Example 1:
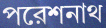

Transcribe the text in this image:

পরেশনাথ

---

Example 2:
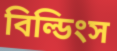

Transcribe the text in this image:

বিল্ডিংস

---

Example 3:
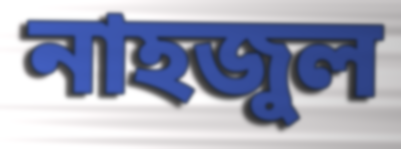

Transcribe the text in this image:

নাহজুল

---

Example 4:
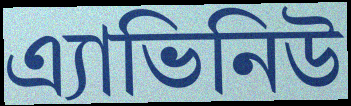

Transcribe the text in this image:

এ্যাভিনিউ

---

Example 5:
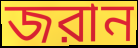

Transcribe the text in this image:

জরান